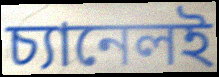
চ্যানেলই